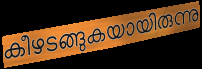
കീഴടങ്ങുകയായിരുന്നു